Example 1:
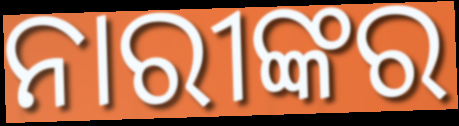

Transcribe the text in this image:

ନାରୀଙ୍କର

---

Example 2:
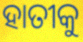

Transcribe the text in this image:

ହାତୀକୁ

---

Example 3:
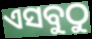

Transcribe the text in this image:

ଏସବୁଠୁ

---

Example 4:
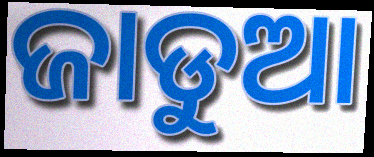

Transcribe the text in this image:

ଜାଡୁଆ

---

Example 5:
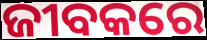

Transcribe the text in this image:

ଜୀବକରେ